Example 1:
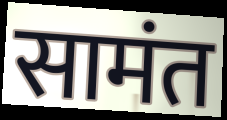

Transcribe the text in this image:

सामंत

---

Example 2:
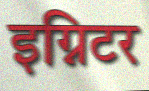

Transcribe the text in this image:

इग्निटर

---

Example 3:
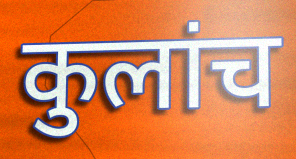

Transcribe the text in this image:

कुलांच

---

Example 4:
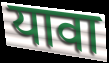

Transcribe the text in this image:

यावा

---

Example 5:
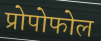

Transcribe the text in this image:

प्रोपोफोल